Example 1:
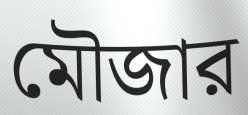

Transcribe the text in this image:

মৌজার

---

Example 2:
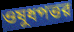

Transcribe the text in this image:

ওষুধপত্তর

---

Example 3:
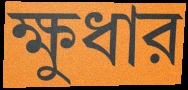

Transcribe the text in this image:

ক্ষুধার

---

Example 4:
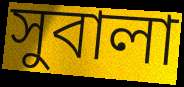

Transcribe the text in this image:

সুবালা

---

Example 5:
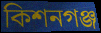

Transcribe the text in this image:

কিশনগঞ্জ